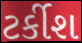
ટર્કીશ